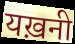
यख़नी